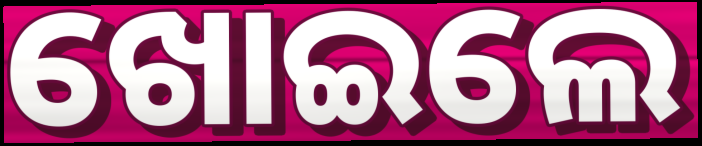
ଖୋଇଲେ